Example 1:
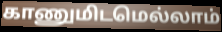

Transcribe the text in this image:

காணுமிடமெல்லாம்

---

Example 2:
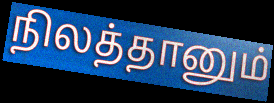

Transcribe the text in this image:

நிலத்தானும்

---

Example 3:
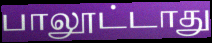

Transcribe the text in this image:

பாலூட்டாது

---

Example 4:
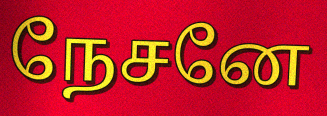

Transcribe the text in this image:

நேசனே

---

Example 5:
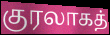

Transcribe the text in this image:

குரலாகத்